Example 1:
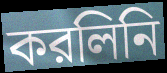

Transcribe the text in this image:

করলিনি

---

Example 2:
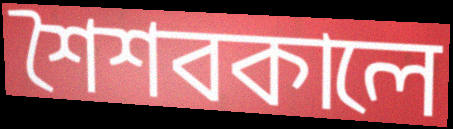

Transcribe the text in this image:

শৈশবকালে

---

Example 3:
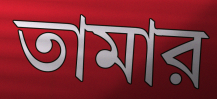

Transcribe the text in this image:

তামার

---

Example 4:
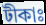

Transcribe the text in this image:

টীকাঃ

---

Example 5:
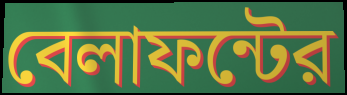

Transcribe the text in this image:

বেলাফন্টের